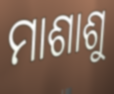
ମାଶାଶୁ